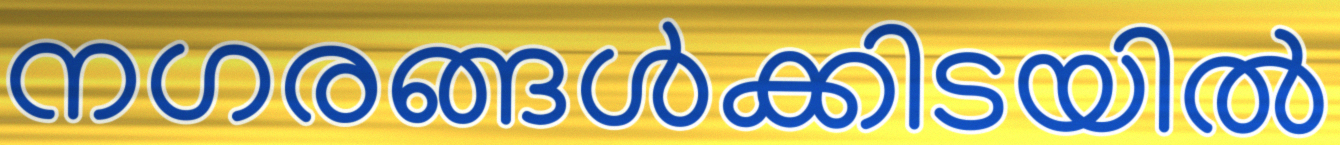
നഗരങ്ങൾക്കിടയിൽ